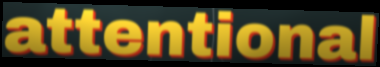
attentional